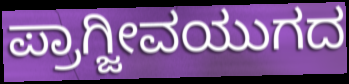
ಪ್ರಾಗ್ಜೀವಯುಗದ